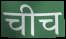
चीच